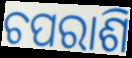
ଚପରାଶି